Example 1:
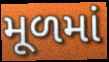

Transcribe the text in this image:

મૂળમાં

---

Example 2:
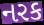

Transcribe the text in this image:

નરક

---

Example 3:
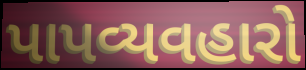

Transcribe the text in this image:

પાપવ્યવહારો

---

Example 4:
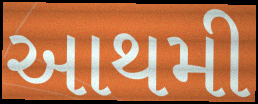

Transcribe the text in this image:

આથમી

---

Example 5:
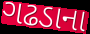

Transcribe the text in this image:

ગઢડાના